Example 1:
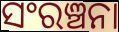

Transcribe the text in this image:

ସଂରଞ୍ଚନା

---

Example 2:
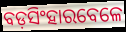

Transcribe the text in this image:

ବଡ଼ସିଂହାରବେଳେ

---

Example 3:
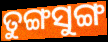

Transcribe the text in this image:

ତୁଙ୍ଗସୁଙ୍ଗ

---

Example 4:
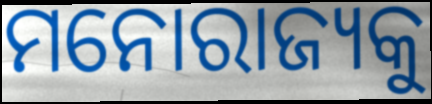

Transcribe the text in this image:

ମନୋରାଜ୍ୟକୁ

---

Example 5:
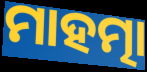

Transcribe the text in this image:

ମାହତ୍ମା